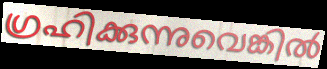
ഗ്രഹിക്കുന്നുവെങ്കിൽ